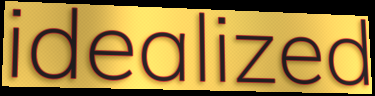
idealized